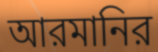
আরমানির